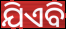
ଯିଏବି